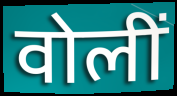
वोलीं